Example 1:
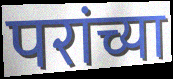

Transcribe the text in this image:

परांच्या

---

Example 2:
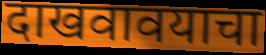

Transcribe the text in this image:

दाखवावयाचा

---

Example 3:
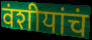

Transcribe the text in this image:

वंशीयांचं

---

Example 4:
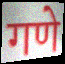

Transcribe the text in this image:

गणे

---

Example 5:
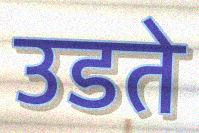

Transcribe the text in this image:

उडते